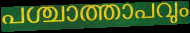
പശ്ചാത്താപവും